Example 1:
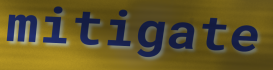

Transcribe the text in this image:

mitigate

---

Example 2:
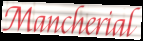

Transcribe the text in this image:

Mancherial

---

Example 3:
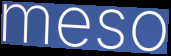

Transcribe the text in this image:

meso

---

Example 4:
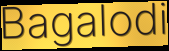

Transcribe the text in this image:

Bagalodi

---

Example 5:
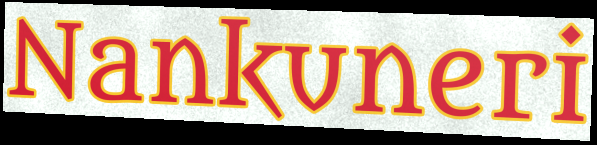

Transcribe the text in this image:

Nankuneri